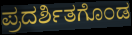
ಪ್ರದರ್ಶಿತಗೊಂಡ